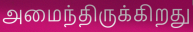
அமைந்திருக்கிறது